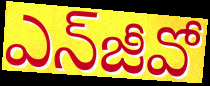
ఎన్‌జీవో